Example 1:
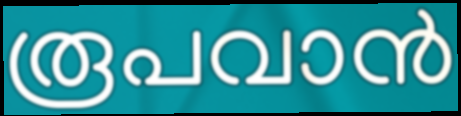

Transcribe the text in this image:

രൂപവാൻ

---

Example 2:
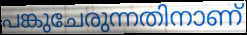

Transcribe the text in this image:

പങ്കുചേരുന്നതിനാണ്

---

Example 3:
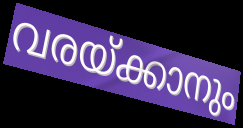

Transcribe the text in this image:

വരയ്ക്കാനും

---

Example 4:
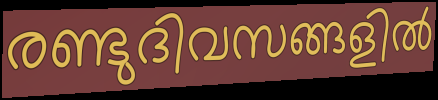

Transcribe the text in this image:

രണ്ടുദിവസങ്ങളിൽ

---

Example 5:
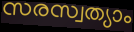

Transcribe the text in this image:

സരസ്വത്യാം